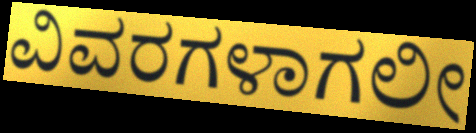
ವಿವರಗಳಾಗಲೀ